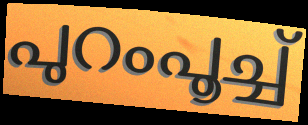
പുറംപൂച്ച്